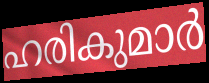
ഹരികുമാർ